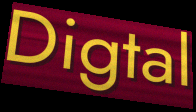
Digtal